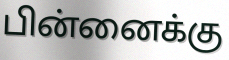
பின்னைக்கு